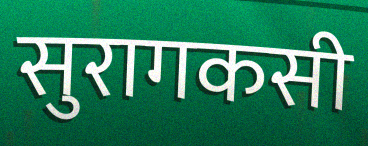
सुरागकसी